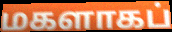
மகளாகப்